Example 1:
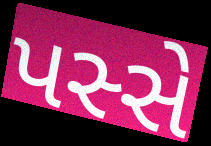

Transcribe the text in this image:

પસ્સે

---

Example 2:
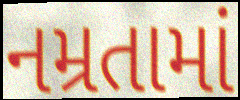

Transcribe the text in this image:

નમ્રતામાં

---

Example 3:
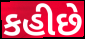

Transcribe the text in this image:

કહીછે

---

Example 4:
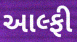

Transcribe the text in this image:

આલ્ફી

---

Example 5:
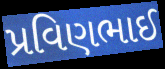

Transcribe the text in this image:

પ્રવિણભાઈ